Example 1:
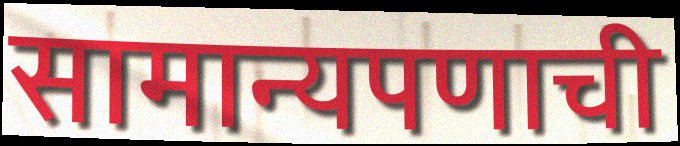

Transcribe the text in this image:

सामान्यपणाची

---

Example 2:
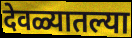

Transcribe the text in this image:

देवळ्यातल्या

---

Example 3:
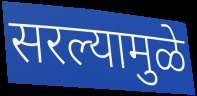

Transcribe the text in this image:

सरल्यामुळे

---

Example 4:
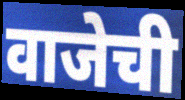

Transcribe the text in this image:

वाजेची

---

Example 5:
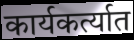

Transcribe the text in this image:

कार्यकर्त्यात